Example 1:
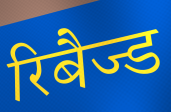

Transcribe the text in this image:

रिबैज्ड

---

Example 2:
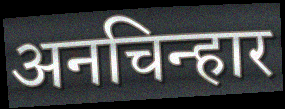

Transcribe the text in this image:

अनचिन्हार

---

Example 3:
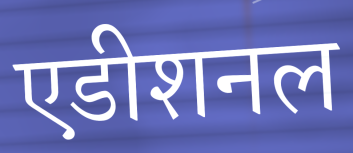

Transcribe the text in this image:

एडीशनल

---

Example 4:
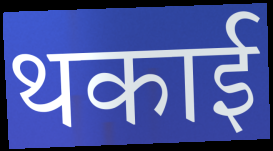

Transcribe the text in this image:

थकाई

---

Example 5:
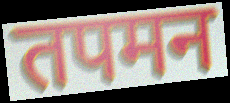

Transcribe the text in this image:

तपमन